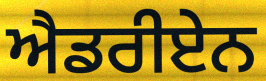
ਐਡਰੀਏਨ